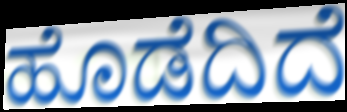
ಹೊಡೆದಿದೆ